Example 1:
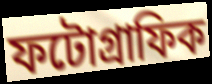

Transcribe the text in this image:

ফটোগ্ৰাফিক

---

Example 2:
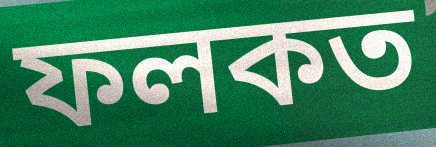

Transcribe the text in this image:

ফলকত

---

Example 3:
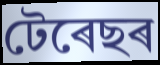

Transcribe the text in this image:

টেৰেছৰ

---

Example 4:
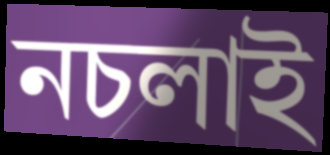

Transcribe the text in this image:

নচলাই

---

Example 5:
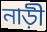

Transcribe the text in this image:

নাড়ী